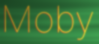
Moby